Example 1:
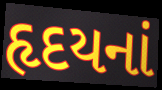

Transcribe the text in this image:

હૃદયનાં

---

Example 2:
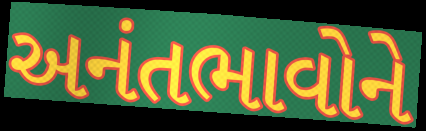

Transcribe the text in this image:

અનંતભાવોને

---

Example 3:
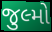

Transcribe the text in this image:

જુલ્મો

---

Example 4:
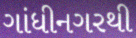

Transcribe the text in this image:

ગાંધીનગરથી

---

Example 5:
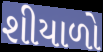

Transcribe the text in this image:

શીયાળો